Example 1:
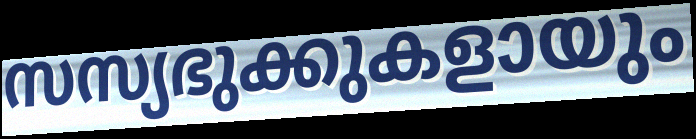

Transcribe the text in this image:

സസ്യഭുക്കുകളായും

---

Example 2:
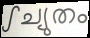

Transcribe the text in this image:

ഽച്യുതം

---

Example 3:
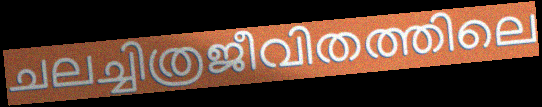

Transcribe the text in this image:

ചലച്ചിത്രജീവിതത്തിലെ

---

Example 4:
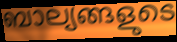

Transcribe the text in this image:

ബാല്യങ്ങളുടെ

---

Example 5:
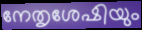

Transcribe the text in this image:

നേതൃശേഷിയും